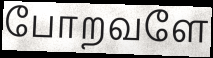
போறவளே